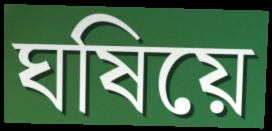
ঘষিয়ে